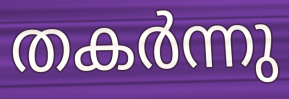
തകർന്നു